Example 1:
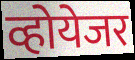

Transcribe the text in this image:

व्होयेजर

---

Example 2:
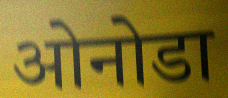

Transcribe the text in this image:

ओनोडा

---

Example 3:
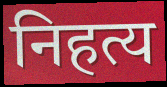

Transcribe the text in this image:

निहत्य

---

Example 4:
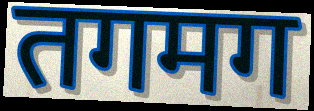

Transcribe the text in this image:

तगमग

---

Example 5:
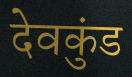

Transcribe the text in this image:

देवकुंड